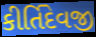
કીર્તિદેવજી